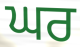
ਘਰ